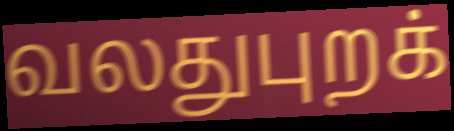
வலதுபுறக்